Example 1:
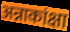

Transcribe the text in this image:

अन्नाकांक्षा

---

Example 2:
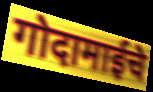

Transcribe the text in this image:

गोदामाईचे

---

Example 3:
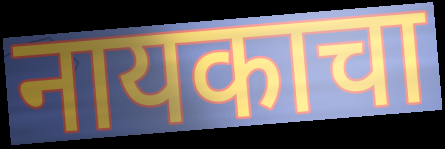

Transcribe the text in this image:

नायकाचा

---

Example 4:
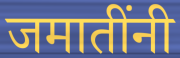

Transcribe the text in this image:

जमातींनी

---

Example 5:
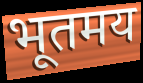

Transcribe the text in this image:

भूतमय